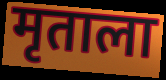
मृताला